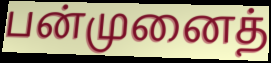
பன்முனைத்